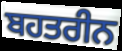
ਬਹਤਰੀਨ